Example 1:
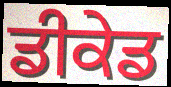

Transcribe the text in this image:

ਡੀਕੇਡ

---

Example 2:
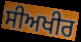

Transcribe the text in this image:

ਸੀਅਖੀਰ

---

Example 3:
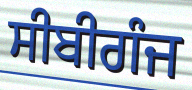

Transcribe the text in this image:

ਸੀਬੀਗੰਜ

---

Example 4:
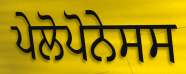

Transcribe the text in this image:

ਪੇਲੋਪੋਨੇਸਸ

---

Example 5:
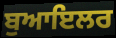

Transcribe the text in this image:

ਬੁਆਇਲਰ